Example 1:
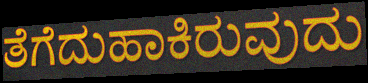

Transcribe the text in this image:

ತೆಗೆದುಹಾಕಿರುವುದು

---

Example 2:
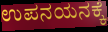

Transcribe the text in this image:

ಉಪನಯನಕ್ಕೆ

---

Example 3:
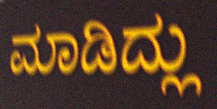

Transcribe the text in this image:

ಮಾಡಿದ್ಲು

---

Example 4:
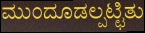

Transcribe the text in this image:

ಮುಂದೂಡಲ್ಪಟ್ಟಿತು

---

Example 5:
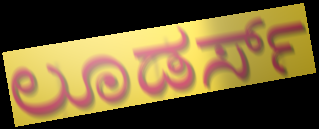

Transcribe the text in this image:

ಲೂಡರ್ಸ್